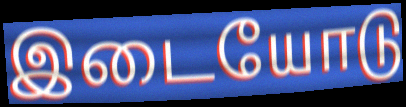
இடையோடு